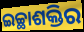
ଇଚ୍ଛାଶକ୍ତିର